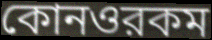
কোনওরকম